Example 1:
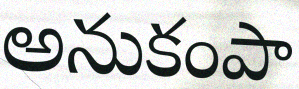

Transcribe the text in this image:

అనుకంపా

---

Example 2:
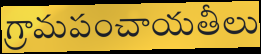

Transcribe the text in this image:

గ్రామపంచాయతీలు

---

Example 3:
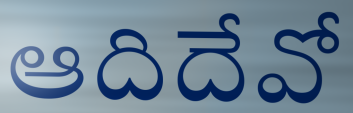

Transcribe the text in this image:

ఆదిదేవో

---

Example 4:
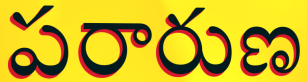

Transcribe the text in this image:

పరారుణ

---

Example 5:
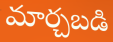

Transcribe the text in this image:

మార్చబడి